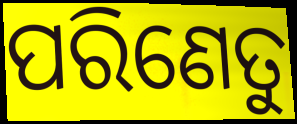
ପରିଣେତୁ